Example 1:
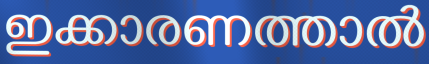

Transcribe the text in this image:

ഇക്കാരണത്താൽ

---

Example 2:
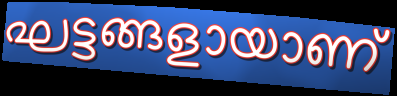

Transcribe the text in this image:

ഘട്ടങ്ങളായാണ്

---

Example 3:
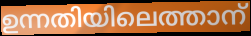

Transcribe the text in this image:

ഉന്നതിയിലെത്താന്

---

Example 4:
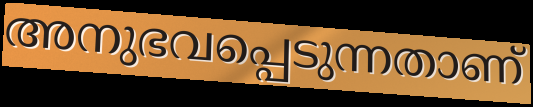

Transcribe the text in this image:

അനുഭവപ്പെടുന്നതാണ്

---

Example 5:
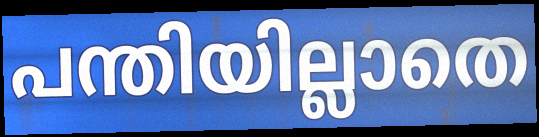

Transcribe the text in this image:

പന്തിയില്ലാതെ